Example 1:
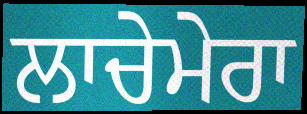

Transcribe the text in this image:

ਲਾਚੇਮੇਰਾ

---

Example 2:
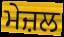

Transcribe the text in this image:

ਮੇਜ਼ਲ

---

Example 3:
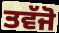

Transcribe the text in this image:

ਤਵੱਜੋ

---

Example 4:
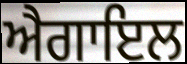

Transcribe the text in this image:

ਐਗਾਇਲ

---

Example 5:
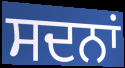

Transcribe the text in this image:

ਸਦਨਾਂ